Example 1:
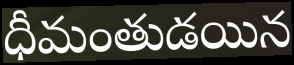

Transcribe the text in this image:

ధీమంతుడయిన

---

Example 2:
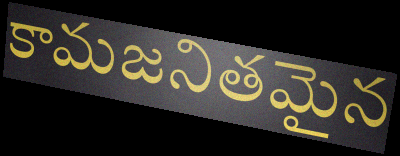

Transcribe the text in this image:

కామజనితమైన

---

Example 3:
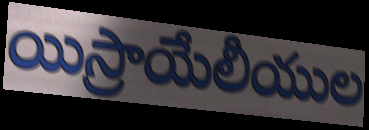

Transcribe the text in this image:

యిస్రాయేలీయుల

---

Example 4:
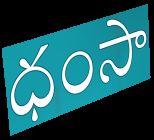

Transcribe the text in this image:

ధంసా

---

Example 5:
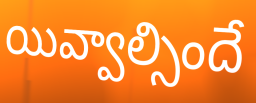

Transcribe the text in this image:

యివ్వాల్సిందే